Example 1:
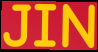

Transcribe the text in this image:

JIN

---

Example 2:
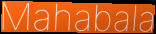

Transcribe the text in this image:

Mahabala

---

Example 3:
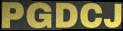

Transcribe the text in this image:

PGDCJ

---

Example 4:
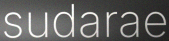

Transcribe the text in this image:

sudarae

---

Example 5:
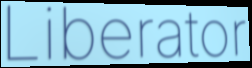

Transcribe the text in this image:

Liberator